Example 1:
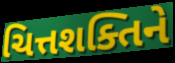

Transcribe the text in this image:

ચિત્તશક્તિને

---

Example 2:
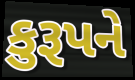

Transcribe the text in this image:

કુરૂપને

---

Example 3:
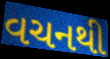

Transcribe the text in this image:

વચનથી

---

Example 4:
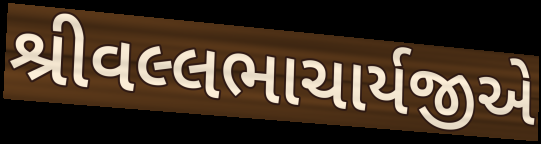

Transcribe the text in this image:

શ્રીવલ્લભાચાર્યજીએ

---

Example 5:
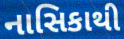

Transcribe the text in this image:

નાસિકાથી